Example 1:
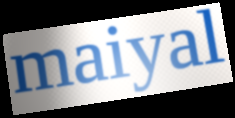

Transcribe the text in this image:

maiyal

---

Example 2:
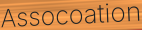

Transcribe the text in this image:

Assocoation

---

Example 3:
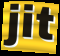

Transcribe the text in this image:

jit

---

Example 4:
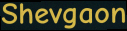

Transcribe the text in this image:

Shevgaon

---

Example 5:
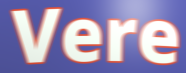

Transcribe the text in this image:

Vere